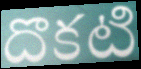
దొకటి